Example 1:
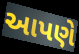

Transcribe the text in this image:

આપણે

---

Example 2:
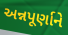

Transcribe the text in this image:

અન્નપૂર્ણાને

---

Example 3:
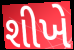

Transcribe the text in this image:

શીખે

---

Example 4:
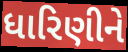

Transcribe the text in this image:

ધારિણીને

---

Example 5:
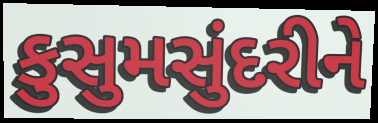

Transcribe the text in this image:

કુસુમસુંદરીને